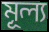
মূল্য